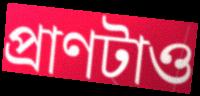
প্রাণটাও